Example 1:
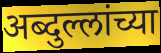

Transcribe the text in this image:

अब्दुल्लांच्या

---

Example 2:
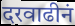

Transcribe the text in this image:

दरवाढीनं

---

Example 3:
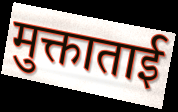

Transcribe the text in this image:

मुक्ताताई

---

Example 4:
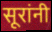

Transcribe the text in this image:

सूरांनी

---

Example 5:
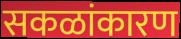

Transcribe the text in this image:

सकळांकारण